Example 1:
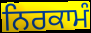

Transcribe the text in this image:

ਨਿਰਕਾਮੰ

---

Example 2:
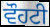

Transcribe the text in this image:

ਵੌਹਟੀ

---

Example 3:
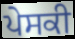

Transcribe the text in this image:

ਪੇਸਕੀ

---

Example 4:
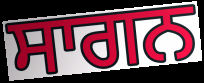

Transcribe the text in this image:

ਸਾਗਨ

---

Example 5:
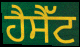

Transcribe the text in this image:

ਹੈਸੈੱਟ